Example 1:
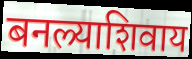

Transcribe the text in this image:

बनल्याशिवाय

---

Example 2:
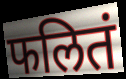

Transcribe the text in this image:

फलितं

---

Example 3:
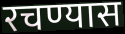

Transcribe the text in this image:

रचण्यास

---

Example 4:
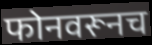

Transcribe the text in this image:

फोनवरूनच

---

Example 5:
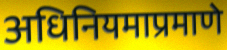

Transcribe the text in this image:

अधिनियमाप्रमाणे